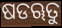
ଷଡୠତୁ